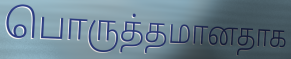
பொருத்தமானதாக